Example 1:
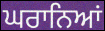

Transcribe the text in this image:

ਘਰਾਨਿਆਂ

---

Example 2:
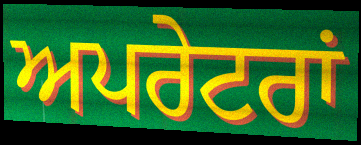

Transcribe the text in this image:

ਅਪਰੇਟਰਾਂ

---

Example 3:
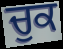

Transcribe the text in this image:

ਚੁਕ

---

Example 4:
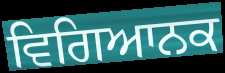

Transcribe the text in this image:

ਵਿਗਿਆਨਕ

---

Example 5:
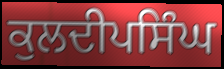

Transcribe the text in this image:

ਕੁਲਦੀਪਸਿੰਘ